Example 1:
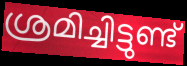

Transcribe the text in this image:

ശ്രമിച്ചിട്ടുണ്ട്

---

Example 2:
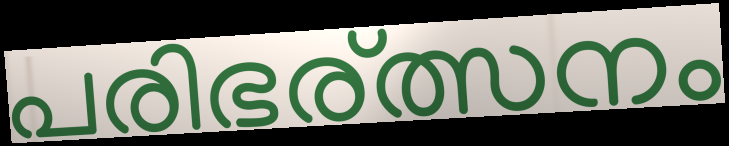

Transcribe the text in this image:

പരിഭര്ത്സനം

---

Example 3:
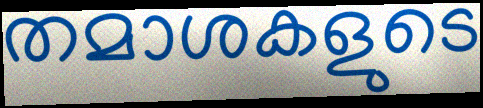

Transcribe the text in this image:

തമാശകളുടെ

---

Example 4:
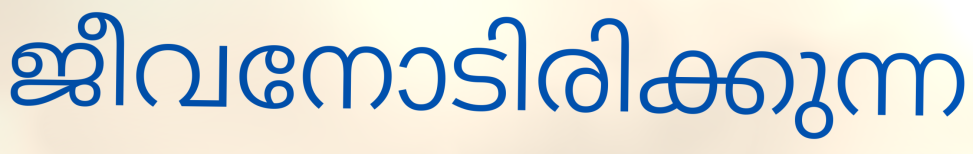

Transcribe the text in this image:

ജീവനോടിരിക്കുന്ന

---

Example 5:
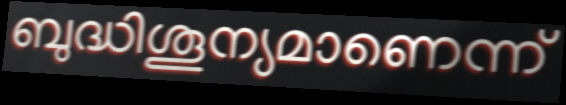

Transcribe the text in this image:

ബുദ്ധിശൂന്യമാണെന്ന്